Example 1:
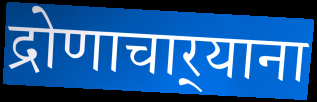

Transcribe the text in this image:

द्रोणाचार्याना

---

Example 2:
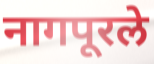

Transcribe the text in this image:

नागपूरले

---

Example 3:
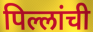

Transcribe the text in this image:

पिल्लांची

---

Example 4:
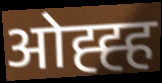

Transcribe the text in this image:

ओह्ह्ह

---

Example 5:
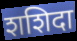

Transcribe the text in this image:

शशिदा